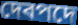
দেবপদে